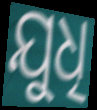
ଯୁଧି